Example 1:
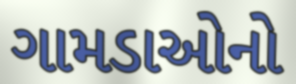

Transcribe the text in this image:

ગામડાઓનો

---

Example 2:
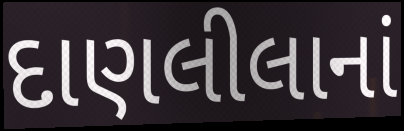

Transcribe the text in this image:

દાણલીલાનાં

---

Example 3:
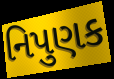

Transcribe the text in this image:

નિપુણક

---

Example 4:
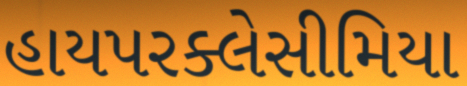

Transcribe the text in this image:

હાયપરક્લેસીમિયા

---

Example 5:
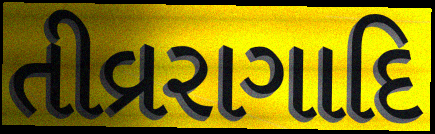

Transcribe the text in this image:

તીવ્રરાગાદિ